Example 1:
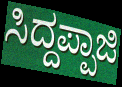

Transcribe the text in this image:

ಸಿದ್ದಪ್ಪಾಜಿ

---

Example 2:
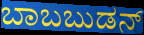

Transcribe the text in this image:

ಬಾಬಬುಡನ್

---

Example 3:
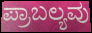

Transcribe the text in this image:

ಪ್ರಾಬಲ್ಯವು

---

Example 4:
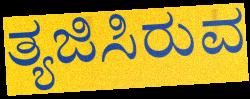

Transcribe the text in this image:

ತ್ಯಜಿಸಿರುವ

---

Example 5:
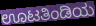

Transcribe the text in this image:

ಊಟತಿಂಡಿಯ